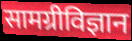
सामग्रीविज्ञान